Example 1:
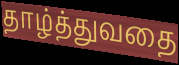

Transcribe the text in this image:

தாழ்த்துவதை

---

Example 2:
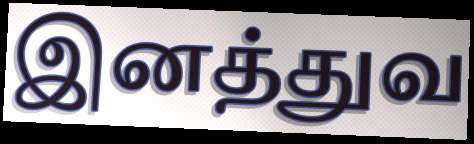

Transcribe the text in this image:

இனத்துவ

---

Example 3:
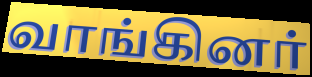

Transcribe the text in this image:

வாங்கினர்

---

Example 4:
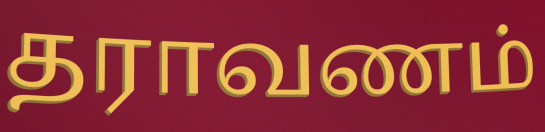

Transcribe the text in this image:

தராவணம்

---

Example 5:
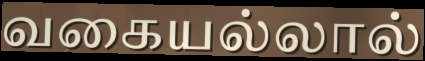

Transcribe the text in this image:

வகையல்லால்